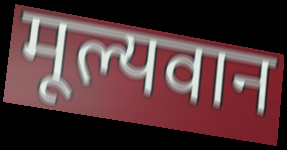
मूल्यवान